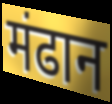
मंढान